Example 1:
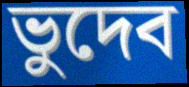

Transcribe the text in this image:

ভুদেব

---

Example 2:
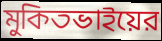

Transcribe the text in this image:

মুকিতভাইয়ের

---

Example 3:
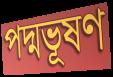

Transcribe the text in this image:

পদ্মভূষণ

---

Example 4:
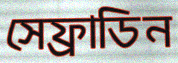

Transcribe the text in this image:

সেফ্রাডিন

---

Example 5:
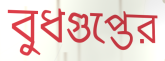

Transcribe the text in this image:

বুধগুপ্তের